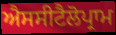
ਐਸਸੀਟੈਲੋਪ੍ਰਾਮ